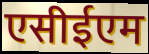
एसीईएम